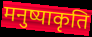
मनुष्याकृति